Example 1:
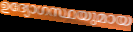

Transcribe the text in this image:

ഉദ്യോഗസ്ഥയുമായ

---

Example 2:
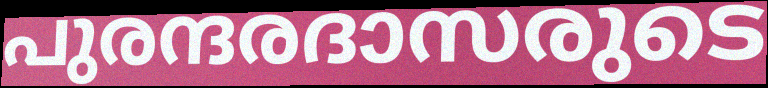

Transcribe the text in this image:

പുരന്ദരദാസരുടെ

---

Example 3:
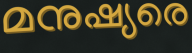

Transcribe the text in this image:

മനുഷ്യരെ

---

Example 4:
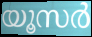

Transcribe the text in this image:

യൂസർ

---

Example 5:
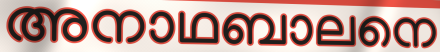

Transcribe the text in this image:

അനാഥബാലനെ